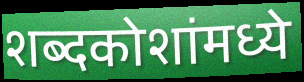
शब्दकोशांमध्ये